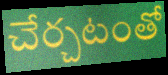
చేర్చటంతో